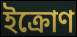
ইক্রোণ